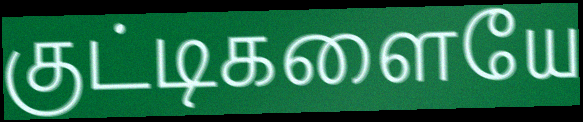
குட்டிகளையே